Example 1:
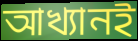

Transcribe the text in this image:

আখ্যানই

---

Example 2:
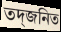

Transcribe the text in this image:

তদ্জনিত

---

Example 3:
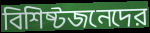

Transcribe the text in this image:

বিশিষ্টজনেদের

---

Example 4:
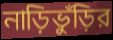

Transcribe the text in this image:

নাড়িভুঁড়ির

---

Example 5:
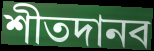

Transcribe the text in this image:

শীতদানব